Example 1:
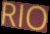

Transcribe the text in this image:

RIO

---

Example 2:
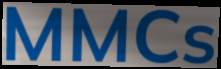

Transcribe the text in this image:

MMCs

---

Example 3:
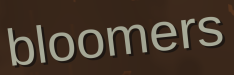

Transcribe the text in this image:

bloomers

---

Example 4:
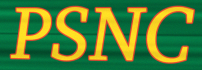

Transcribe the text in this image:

PSNC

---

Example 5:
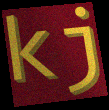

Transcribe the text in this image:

kj